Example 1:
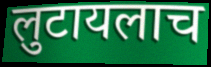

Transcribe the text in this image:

लुटायलाच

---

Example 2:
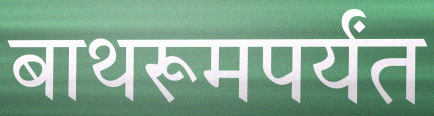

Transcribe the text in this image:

बाथरूमपर्यंत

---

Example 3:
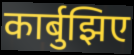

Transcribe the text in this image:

कार्बुझिए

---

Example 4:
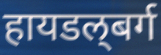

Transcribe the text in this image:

हायडल्‌बर्ग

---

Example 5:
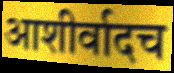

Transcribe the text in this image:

आशीर्वादच